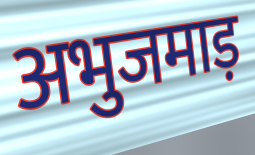
अभुजमाड़